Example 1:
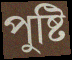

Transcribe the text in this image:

পুষ্টি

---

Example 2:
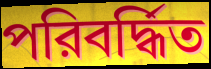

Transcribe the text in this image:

পরিবর্দ্ধিত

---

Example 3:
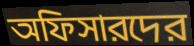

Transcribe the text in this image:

অফিসারদের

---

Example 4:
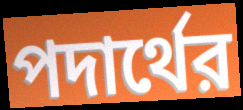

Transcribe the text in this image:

পদার্থের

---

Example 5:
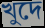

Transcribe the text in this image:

খুদে